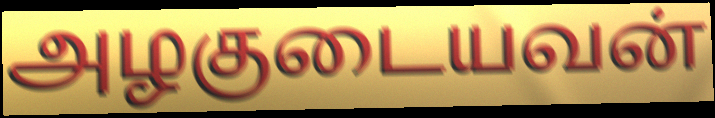
அழகுடையவன்